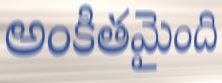
అంకితమైంది